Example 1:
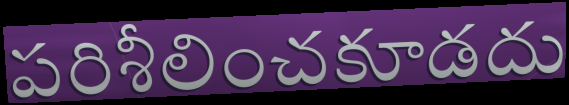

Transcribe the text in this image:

పరిశీలించకూడదు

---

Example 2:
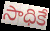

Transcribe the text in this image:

సాధికే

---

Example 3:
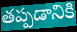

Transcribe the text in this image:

తప్పడానికి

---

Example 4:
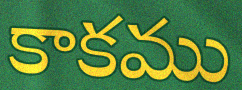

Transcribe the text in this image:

కాకము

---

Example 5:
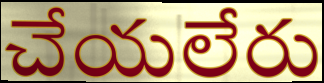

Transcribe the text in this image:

చేయలేరు